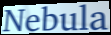
Nebula